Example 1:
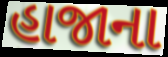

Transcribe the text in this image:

હાજાના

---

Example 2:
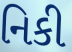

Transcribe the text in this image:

નિકી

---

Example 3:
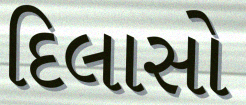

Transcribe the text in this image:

દિલાસો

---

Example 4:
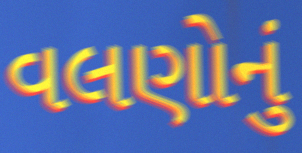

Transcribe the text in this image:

વલણોનું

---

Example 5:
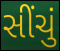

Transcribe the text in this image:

સીંચું